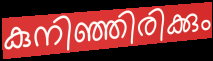
കുനിഞ്ഞിരിക്കും